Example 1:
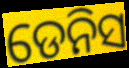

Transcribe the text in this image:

ଡେନିସ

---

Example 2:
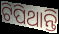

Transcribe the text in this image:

ଟିପିଥାନ୍ତି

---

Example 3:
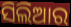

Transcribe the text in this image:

ସିଲିଆର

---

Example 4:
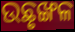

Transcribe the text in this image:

ଉଛୃଙ୍ଖଳ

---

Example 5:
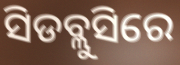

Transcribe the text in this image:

ସିଡବ୍ଲୁସିରେ